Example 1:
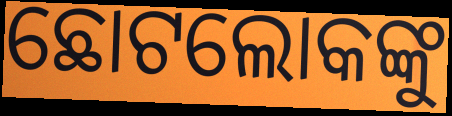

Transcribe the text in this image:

ଛୋଟଲୋକଙ୍କୁ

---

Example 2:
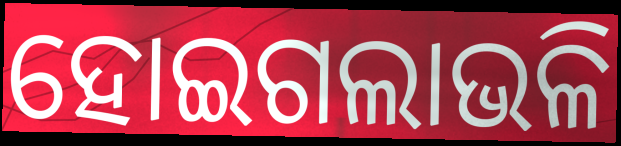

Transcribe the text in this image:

ହୋଇଗଲାଭଳି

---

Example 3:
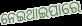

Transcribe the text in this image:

ନେଇଥାଇପାରେ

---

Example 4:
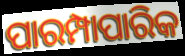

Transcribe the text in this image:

ପାରମ୍ପାପାରିକ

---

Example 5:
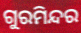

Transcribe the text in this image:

ଗୁରମିନ୍ଦର